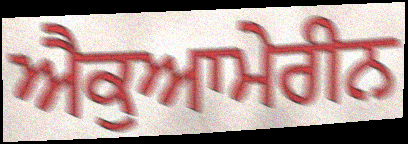
ਐਕੁਆਮੇਰੀਨ